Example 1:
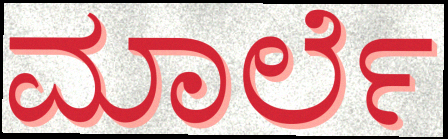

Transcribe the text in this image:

ಮಾರ್ಲೆ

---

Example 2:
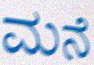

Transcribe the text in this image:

ಮನೆ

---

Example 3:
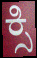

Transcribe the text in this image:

ಕ್ಸಿ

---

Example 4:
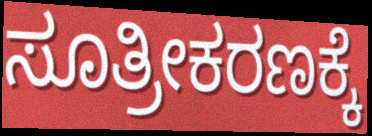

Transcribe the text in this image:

ಸೂತ್ರೀಕರಣಕ್ಕೆ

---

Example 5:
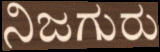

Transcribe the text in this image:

ನಿಜಗುರು